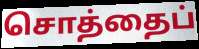
சொத்தைப்